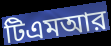
টিএমআর